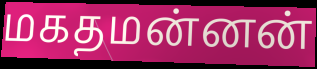
மகதமன்னன்